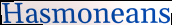
Hasmoneans